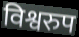
विश्वरुप